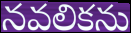
నవలికను